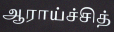
ஆராய்ச்சித்